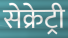
सेक्रेट्री